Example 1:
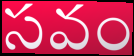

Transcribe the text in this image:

సవం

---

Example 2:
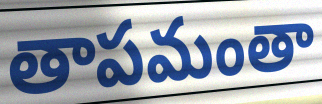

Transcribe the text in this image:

తాపమంతా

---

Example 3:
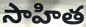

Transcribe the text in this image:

సాహిత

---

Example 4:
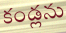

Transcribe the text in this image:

కండ్లను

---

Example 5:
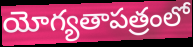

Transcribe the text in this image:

యోగ్యతాపత్రంలో